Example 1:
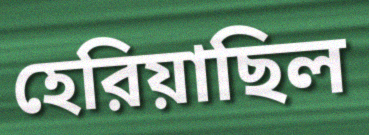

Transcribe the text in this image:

হেরিয়াছিল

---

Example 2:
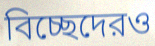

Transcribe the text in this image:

বিচ্ছেদেরও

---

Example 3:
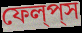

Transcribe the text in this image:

ফেল্‌প্‌স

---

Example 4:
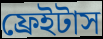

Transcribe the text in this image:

ফ্রেইটাস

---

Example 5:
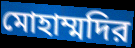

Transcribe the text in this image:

মোহাম্মদির